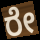
ರೇ